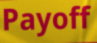
Payoff